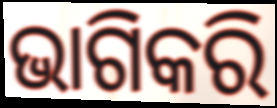
ଭାଗିକରି